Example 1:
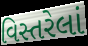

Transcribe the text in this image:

વિસ્તરેલાં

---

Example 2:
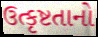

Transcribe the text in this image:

ઉત્કૃષ્ટતાનો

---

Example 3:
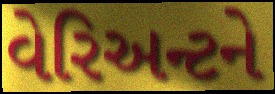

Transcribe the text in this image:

વેરિઅન્ટને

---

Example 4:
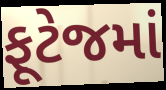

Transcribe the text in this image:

ફૂટેજમાં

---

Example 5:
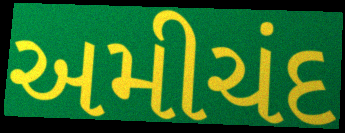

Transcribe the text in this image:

અમીચંદ